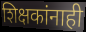
शिक्षकांनाही